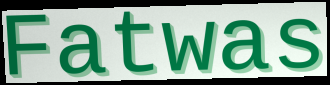
Fatwas